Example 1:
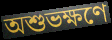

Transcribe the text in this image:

অশুভক্ষণে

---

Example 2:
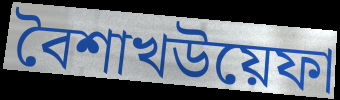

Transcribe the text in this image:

বৈশাখউয়েফা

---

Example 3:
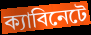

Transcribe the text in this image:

ক্যাবিনেটে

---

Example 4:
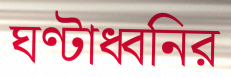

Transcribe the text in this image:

ঘণ্টাধ্বনির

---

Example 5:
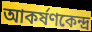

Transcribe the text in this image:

আকর্ষণকেন্দ্র